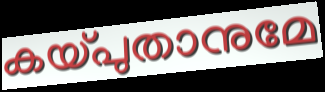
കയ്പുതാനുമേ